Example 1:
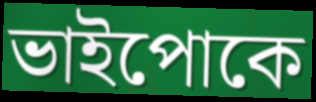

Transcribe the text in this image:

ভাইপোকে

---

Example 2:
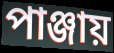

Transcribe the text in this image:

পাঞ্জায়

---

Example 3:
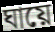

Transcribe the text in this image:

ঘায়ে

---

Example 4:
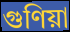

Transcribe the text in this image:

গুণিয়া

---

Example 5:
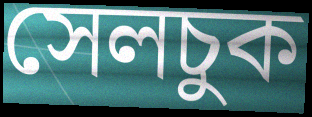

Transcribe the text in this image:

সেলচুক